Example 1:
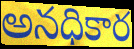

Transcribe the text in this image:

అనధికార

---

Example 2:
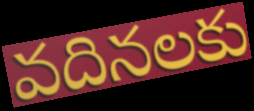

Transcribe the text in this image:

వదినలకు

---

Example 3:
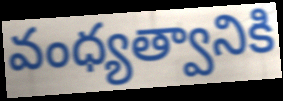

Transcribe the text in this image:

వంధ్యత్వానికి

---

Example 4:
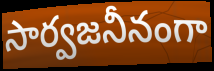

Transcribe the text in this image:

సార్వజనీనంగా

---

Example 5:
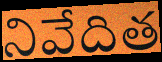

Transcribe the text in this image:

నివేదిత